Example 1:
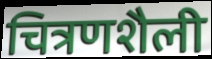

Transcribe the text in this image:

चित्रणशैली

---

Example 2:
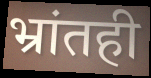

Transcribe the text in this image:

भ्रांतही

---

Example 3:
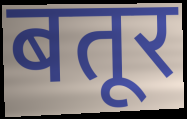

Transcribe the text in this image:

बतूर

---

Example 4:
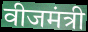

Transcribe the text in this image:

वीजमंत्री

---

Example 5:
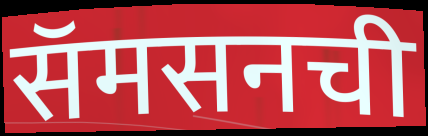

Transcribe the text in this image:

सॅमसनची